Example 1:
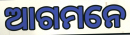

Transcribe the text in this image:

ଆଗମନେ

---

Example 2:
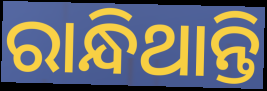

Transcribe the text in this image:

ରାନ୍ଧିଥାନ୍ତି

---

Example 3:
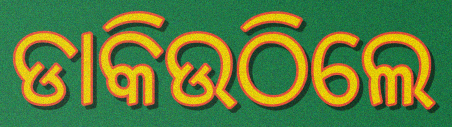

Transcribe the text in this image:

ଡାକିଉଠିଲେ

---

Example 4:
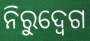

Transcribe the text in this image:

ନିରୁଦ୍ବେଗ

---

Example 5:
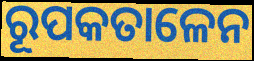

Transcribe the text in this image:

ରୂପକତାଳେନ